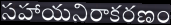
సహాయనిరాకరణం